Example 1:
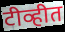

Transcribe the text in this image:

टीव्हीत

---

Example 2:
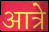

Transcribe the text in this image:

आत्रे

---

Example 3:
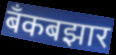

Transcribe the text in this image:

बँकबझार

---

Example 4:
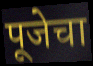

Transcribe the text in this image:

पूजेचा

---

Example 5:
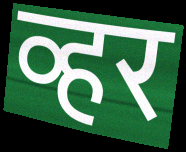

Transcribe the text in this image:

व्हर